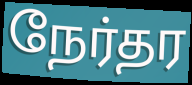
நேர்தர